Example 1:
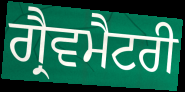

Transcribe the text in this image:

ਗ੍ਰੈਵਮੈਟਰੀ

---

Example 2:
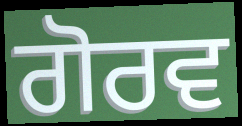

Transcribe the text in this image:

ਗੋਰਵ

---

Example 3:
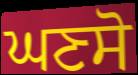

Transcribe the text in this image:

ਘਣਸੋ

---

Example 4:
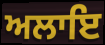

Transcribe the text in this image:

ਅਲਾਇ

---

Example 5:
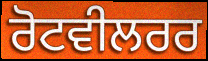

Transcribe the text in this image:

ਰੋਟਵੀਲਰਰ